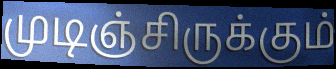
முடிஞ்சிருக்கும்